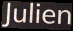
Julien